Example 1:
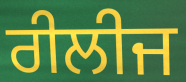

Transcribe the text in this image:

ਰੀਲੀਜ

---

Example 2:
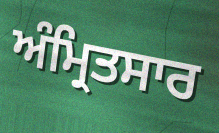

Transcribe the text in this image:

ਅੰਮ੍ਰਿਤਸਾਰ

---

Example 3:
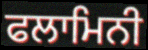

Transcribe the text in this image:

ਫਲਾਮਿਨੀ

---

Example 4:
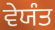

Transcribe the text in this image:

ਵੇਯੰਤ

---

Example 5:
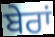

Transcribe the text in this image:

ਬੇਰਾਂ